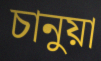
চানুয়া